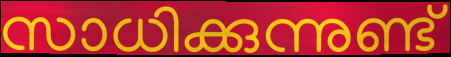
സാധിക്കുന്നുണ്ട്